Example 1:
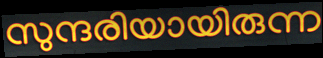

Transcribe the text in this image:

സുന്ദരിയായിരുന്ന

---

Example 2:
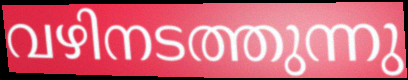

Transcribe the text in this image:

വഴിനടത്തുന്നു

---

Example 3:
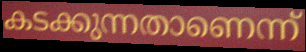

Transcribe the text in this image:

കടക്കുന്നതാണെന്ന്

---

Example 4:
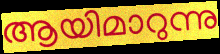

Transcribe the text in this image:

ആയിമാറുന്നു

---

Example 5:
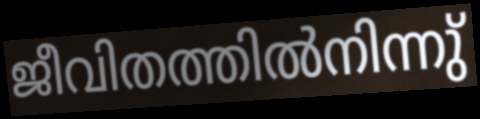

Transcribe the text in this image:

ജീവിതത്തിൽനിന്നു്